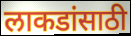
लाकडांसाठी